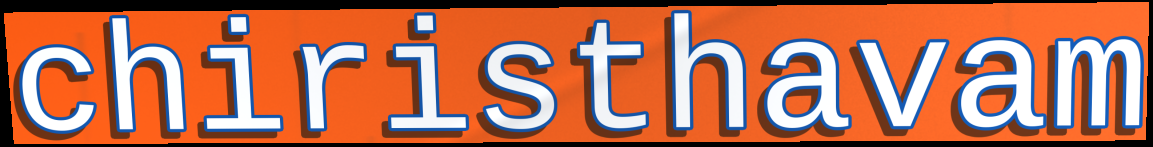
chiristhavam